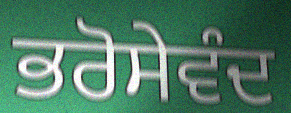
ਭਰੋਸੇਵੰਦ